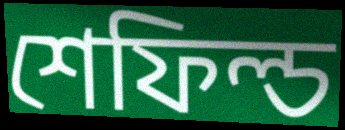
শেফিল্ড